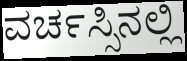
ವರ್ಚಸ್ಸಿನಲ್ಲಿ